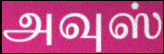
அவுஸ்